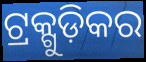
ଟ୍ରକ୍ଗୁଡ଼ିକର